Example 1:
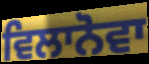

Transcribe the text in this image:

ਵਿਲਾਨੋਵਾ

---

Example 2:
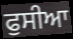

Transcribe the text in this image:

ਫੁਸੀਆ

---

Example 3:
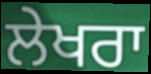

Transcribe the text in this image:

ਲੇਖਰਾ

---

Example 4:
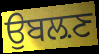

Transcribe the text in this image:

ਉਬਲ਼ਣ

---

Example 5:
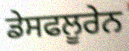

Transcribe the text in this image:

ਡੇਸਫਲੂਰੇਨ